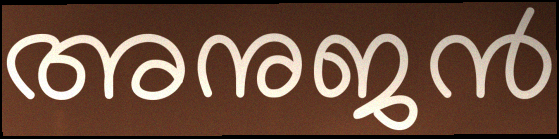
അനുജൻ